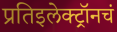
प्रतिइलेक्ट्रॉनचं